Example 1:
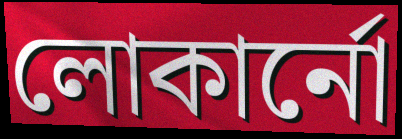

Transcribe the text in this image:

লোকার্নো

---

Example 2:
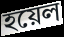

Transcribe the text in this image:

হয়েল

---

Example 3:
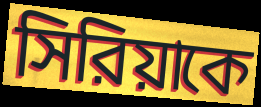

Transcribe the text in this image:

সিরিয়াকে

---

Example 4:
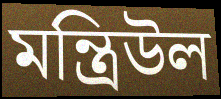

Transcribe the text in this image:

মন্ত্রিউল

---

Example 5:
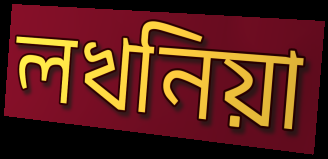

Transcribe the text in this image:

লখনিয়া